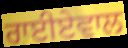
ਰਾਈਏਵਾਲ